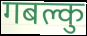
गबल्कु